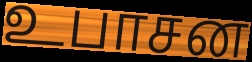
உபாசன